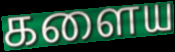
களைய